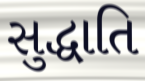
સુદ્ધાતિ